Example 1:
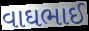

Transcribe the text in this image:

વાઘભાઈ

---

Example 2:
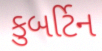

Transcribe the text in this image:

કુબર્ટિન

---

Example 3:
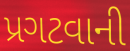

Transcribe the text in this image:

પ્રગટવાની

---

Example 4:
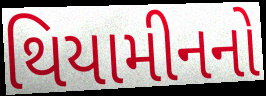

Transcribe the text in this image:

થિયામીનનો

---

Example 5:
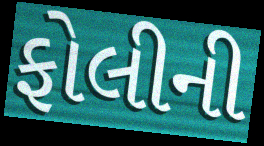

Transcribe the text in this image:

ફોલીની